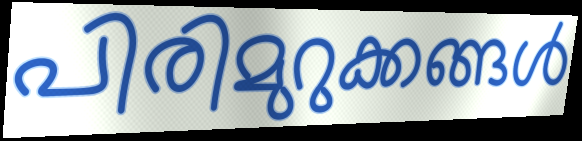
പിരിമുറുക്കങ്ങൾ